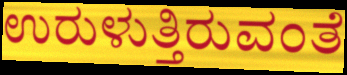
ಉರುಳುತ್ತಿರುವಂತೆ